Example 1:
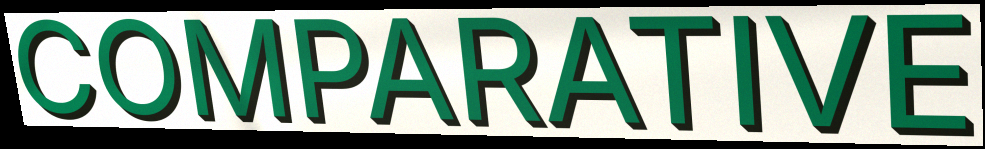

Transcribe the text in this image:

COMPARATIVE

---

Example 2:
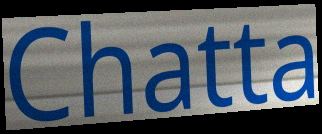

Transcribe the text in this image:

Chatta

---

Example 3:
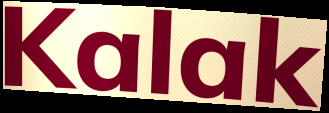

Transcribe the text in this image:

Kalak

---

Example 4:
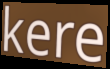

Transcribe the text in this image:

kere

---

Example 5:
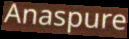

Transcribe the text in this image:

Anaspure